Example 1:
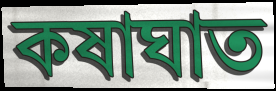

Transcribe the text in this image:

কষাঘাত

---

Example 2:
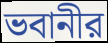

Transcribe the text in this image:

ভবানীর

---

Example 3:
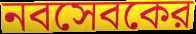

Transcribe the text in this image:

নবসেবকের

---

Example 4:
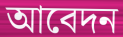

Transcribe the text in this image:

আবেদন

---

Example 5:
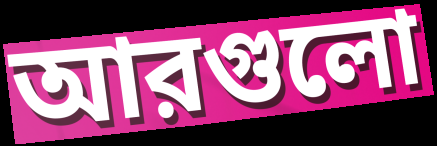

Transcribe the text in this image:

আরগুলো